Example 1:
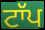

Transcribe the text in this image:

ਟਾੱਪ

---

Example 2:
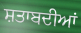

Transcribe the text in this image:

ਸ਼ਤਾਬਦੀਆਂ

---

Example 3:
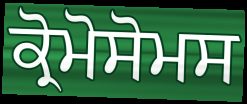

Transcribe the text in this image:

ਕ੍ਰੋਮੋਸੋਮਸ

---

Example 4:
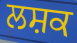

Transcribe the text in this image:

ਲਸ਼ਕ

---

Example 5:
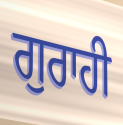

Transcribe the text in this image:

ਗੁਰਾਹੀ